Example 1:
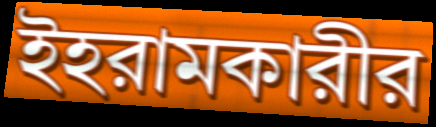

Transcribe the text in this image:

ইহরামকারীর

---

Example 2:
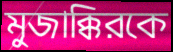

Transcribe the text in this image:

মুজাক্কিরকে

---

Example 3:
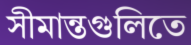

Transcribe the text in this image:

সীমান্তগুলিতে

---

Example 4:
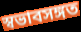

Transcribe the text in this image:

স্বভাবসঙ্গত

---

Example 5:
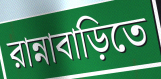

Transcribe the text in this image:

রান্নাবাড়িতে